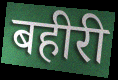
बहीरी